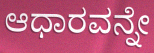
ಆಧಾರವನ್ನೇ